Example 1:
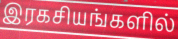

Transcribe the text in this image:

இரகசியங்களில்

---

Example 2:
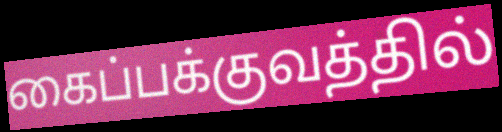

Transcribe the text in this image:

கைப்பக்குவத்தில்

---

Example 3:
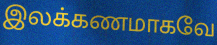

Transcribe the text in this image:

இலக்கணமாகவே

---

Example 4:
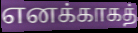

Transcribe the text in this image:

எனக்காகத்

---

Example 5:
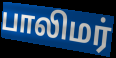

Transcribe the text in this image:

பாலிமர்